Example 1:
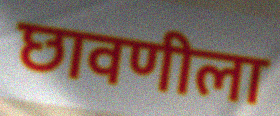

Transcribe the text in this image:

छावणीला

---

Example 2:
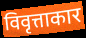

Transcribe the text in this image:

विवृत्ताकार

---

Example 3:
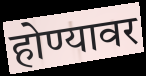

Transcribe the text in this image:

होण्यावर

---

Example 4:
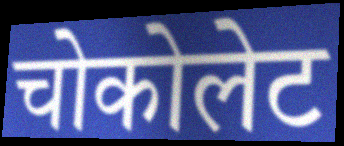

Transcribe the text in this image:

चोकोलेट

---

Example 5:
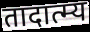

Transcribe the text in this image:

तादात्म्य